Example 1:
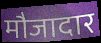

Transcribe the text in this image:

मौजादार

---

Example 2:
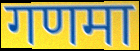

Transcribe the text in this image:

गणमा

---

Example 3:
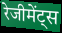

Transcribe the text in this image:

रेजीमेंट्स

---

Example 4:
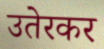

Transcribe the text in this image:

उतेरकर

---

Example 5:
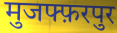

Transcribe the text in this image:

मुजफ्फ़रपुर